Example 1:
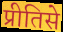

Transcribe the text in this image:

प्रीतिसे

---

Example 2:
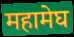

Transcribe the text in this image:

महामेघ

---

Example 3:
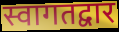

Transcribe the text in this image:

स्वागतद्वार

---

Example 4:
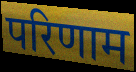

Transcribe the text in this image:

परिणाम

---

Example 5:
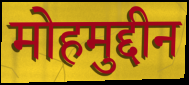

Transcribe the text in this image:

मोहमुद्दीन